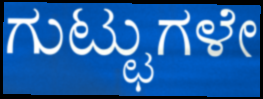
ಗುಟ್ಟುಗಳೇ